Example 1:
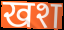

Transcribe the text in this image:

खश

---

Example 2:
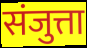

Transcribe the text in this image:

संजुत्ता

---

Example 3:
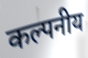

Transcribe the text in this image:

कल्पनीय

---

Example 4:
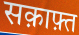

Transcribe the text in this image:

सक़ाफ़्त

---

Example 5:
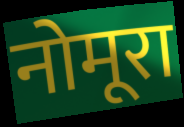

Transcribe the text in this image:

नोमूरा